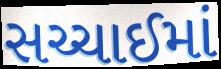
સચ્ચાઈમાં